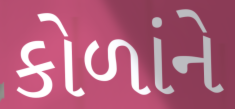
કોળાંને